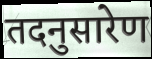
तदनुसारेण